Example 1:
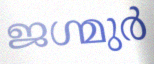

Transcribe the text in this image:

ജഗ്മുർ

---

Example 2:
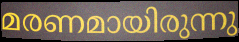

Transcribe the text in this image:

മരണമായിരുന്നു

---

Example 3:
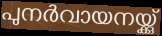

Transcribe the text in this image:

പുനർവായനയ്ക്കു്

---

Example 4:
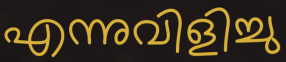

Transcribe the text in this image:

എന്നുവിളിച്ചു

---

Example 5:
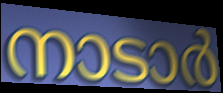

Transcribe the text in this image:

നാടാർ